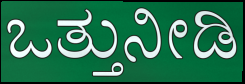
ಒತ್ತುನೀಡಿ